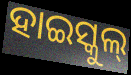
ହାଇସ୍କୁଲ୍